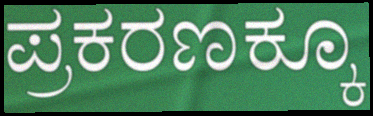
ಪ್ರಕರಣಕ್ಕೂ